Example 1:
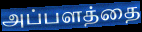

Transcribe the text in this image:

அப்பளத்தை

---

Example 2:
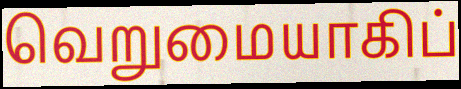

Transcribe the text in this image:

வெறுமையாகிப்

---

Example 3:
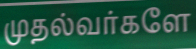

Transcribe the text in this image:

முதல்வர்களே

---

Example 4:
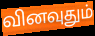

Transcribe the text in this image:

வினவுதும்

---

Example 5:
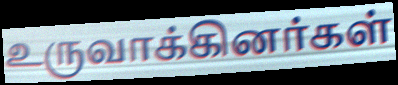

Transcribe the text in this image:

உருவாக்கினர்கள்